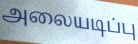
அலையடிப்பு